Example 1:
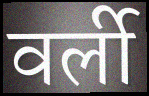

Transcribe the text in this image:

वर्ली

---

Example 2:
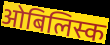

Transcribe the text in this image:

ओबिलिस्क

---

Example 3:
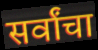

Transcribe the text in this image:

सर्वांचा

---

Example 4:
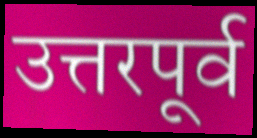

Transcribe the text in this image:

उत्तरपूर्व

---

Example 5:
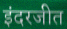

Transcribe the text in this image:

इंदरजीत